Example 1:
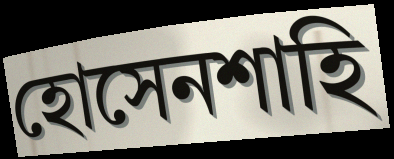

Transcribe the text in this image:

হোসেনশাহি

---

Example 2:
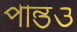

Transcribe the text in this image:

পান্তও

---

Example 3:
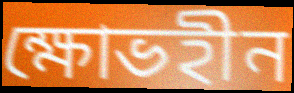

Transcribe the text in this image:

ক্ষোভহীন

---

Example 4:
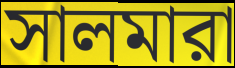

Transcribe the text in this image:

সালমারা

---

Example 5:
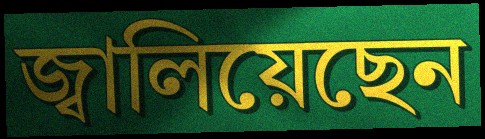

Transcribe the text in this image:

জ্বালিয়েছেন